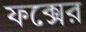
ফক্সের